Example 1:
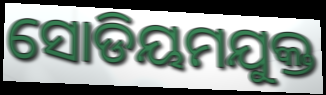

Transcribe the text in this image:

ସୋଡିୟମଯୁକ୍ତ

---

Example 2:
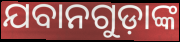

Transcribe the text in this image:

ଯବାନଗୁଡ଼ାଙ୍କ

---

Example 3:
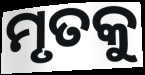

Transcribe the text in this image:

ମୃତକୁ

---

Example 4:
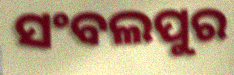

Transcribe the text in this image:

ସଂବଲପୁର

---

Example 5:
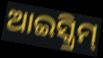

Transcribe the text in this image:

ଆଇସ୍କ୍ରିମ୍